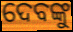
ଦେବଙ୍କୁ